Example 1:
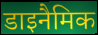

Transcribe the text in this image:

डाइनैमिक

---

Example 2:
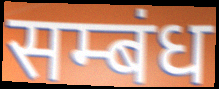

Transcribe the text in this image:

सम्बंध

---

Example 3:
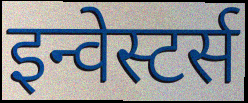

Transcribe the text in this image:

इन्वेस्टर्स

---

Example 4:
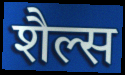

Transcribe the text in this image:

शैल्स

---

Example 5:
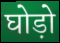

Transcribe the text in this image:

घोड़ो